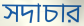
সদাচার